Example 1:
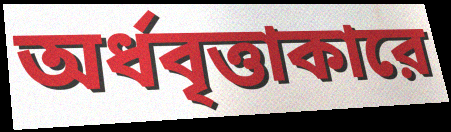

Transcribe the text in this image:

অর্ধবৃত্তাকারে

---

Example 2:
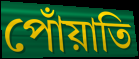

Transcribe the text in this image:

পোঁয়াতি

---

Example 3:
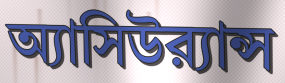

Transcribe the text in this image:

অ্যাসিউর‍্যান্স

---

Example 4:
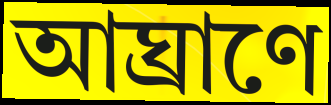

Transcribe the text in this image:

আঘ্রাণে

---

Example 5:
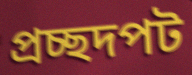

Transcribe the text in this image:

প্রচ্ছদপট